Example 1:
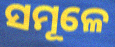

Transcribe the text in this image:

ସମୂଳେ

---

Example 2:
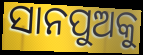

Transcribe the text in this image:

ସାନପୁଅକୁ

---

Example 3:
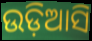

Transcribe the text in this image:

ଉଡ଼ିଆସି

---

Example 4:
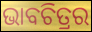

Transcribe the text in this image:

ଭାବଚିତ୍ରର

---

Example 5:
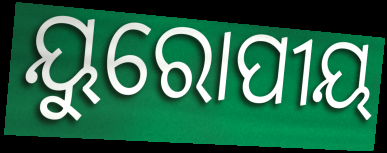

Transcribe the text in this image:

ୟୁରୋପୀୟ